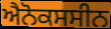
ਐਨੋਕਸਸੀਨ